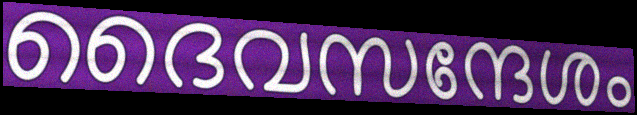
ദൈവസന്ദേശം